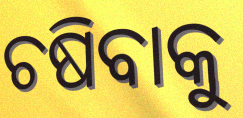
ଚଷିବାକୁ